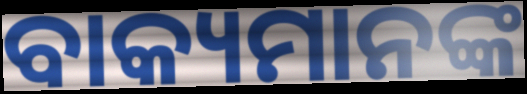
ବାକ୍ୟମାନଙ୍କ